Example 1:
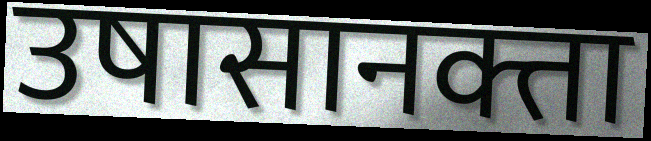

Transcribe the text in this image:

उषासानक्ता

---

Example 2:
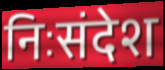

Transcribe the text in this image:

निःसंदेश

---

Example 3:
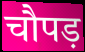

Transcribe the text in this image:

चौपड़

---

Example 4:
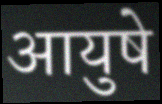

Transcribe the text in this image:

आयुषे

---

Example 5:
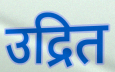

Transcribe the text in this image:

उद्रित